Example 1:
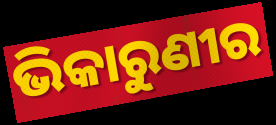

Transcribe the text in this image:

ଭିକାରୁଣୀର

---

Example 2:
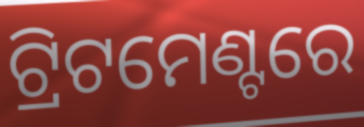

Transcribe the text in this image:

ଟ୍ରିଟମେଣ୍ଟରେ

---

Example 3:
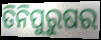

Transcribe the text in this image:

ତିନିପୁରୁଷର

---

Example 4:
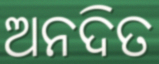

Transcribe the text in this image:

ଅନଦିତ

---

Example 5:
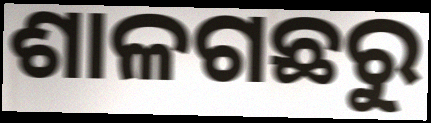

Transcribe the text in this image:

ଶାଳଗଛରୁ